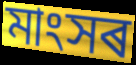
মাংসৰ